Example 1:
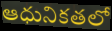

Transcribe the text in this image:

ఆధునికతలో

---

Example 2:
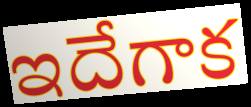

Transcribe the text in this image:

ఇదేగాక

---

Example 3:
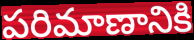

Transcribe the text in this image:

పరిమాణానికి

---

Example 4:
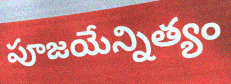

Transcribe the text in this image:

పూజయేన్నిత్యం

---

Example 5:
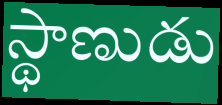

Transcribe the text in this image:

స్థాణుడు